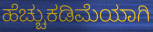
ಹೆಚ್ಚುಕಡಿಮೆಯಾಗಿ